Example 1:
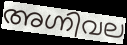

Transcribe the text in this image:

അഗ്നിവല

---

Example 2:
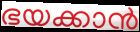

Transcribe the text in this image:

ഭയക്കാൻ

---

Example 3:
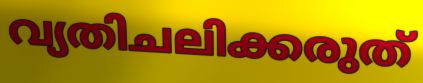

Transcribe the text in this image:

വ്യതിചലിക്കരുത്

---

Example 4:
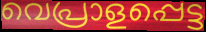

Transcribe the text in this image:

വെപ്രാളപ്പെട്ട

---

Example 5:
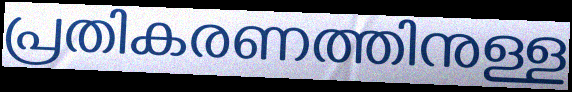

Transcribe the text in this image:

പ്രതികരണത്തിനുള്ള